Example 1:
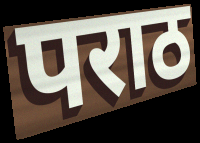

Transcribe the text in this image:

पराठ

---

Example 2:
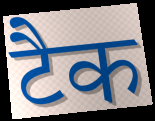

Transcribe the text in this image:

टैक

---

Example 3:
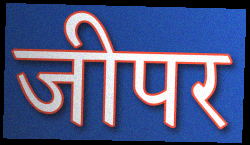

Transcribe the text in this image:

जीपर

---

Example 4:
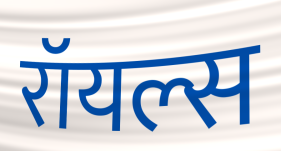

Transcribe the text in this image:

रॉयल्‍स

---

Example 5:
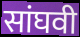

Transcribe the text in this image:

सांघवी